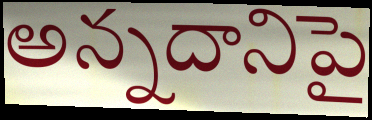
అన్నదానిపై